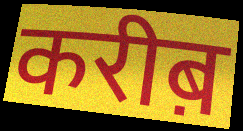
करीब़